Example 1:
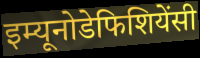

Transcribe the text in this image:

इम्यूनोडेफिशियेंसी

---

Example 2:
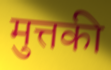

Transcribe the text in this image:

मुत्तकी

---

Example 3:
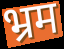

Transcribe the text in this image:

भ्रम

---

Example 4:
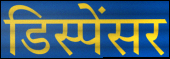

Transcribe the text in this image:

डिस्पेंसर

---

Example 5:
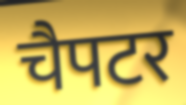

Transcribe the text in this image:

चैपटर